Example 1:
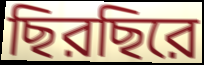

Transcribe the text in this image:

ছিরছিরে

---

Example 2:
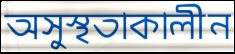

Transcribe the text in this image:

অসুস্থতাকালীন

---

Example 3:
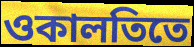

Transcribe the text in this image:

ওকালতিতে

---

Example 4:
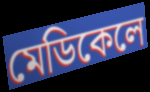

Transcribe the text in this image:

মেডিকেলে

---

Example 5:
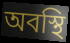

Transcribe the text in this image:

অবস্থি